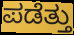
ಪಡೆತ್ತು